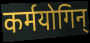
कर्मयोगिन्